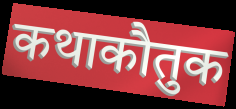
कथाकौतुक